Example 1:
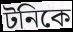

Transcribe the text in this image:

টনিকে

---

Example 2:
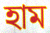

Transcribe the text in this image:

হাম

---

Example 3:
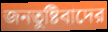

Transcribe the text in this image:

জনতুষ্টিবাদের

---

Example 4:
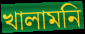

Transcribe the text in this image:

খালামনি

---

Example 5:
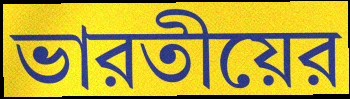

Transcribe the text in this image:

ভারতীয়ের